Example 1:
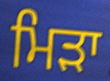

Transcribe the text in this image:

ਮਿੜਾ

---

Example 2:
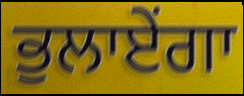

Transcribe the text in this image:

ਭੁਲਾਏਂਗਾ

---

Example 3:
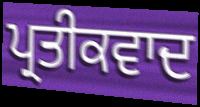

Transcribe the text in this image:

ਪ੍ਰਤੀਕਵਾਦ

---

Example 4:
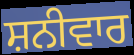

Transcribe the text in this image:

ਸ਼ਨੀਵਾਰ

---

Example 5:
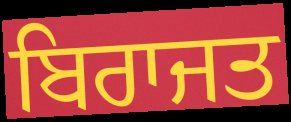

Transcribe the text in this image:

ਬਿਰਾਜਤ